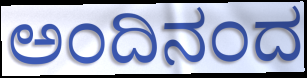
ಅಂದಿನಂದ